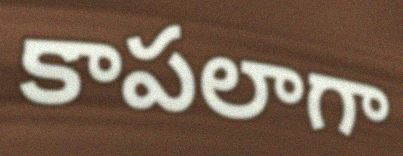
కాపలాగా